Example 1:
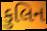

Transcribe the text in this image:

કુલિન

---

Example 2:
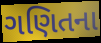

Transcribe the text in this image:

ગણિતના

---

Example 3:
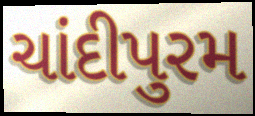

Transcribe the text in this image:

ચાંદીપુરમ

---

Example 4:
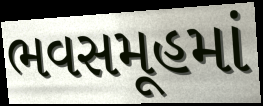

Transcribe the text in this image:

ભવસમૂહમાં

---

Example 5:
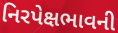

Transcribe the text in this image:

નિરપેક્ષભાવની